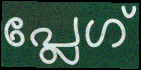
പ്ലേഗ്